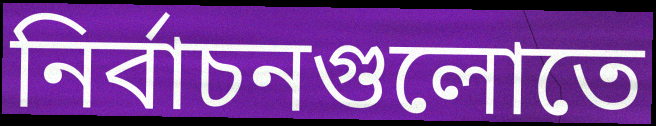
নির্বাচনগুলোতে